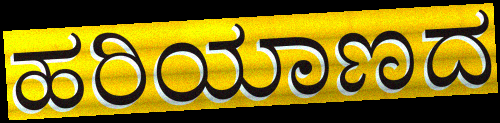
ಹರಿಯಾಣದ